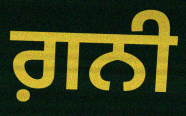
ਗ਼ਨੀ